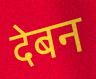
देबन